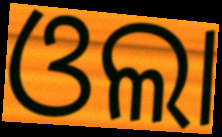
ଓଲା